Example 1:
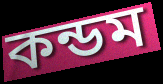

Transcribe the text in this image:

কন্ডম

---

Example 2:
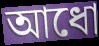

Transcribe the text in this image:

আধো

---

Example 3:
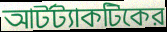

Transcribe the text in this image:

আর্টট্যাকটিকের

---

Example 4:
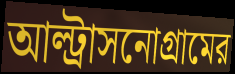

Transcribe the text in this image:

আল্ট্রাসনোগ্রামের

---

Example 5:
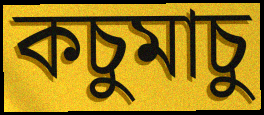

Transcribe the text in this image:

কচুমাচু